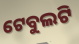
ଟେବୁଲଟି